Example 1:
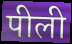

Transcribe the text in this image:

पीली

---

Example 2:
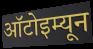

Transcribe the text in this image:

ऑटोइम्यून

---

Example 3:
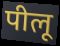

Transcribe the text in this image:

पीलू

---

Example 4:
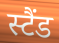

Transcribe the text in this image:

स्टैंड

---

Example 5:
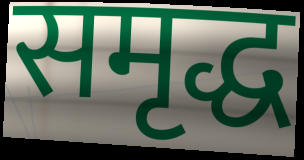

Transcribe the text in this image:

समृद्ध